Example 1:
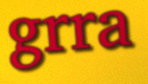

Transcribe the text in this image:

grra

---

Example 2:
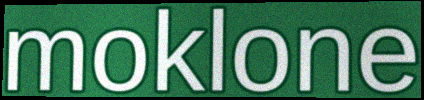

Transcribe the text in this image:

moklone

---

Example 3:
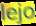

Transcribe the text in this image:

lejo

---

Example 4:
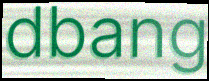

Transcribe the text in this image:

dbang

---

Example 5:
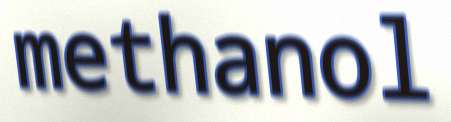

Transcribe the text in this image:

methanol